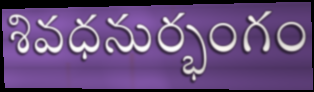
శివధనుర్భంగం